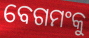
ବେଗମଂକୁ